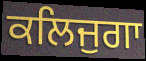
ਕਲਿਜੁਗਾ